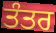
ਤੰਤਰ